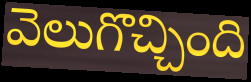
వెలుగొచ్చింది